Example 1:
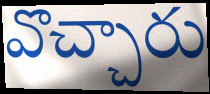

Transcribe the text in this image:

వొచ్చారు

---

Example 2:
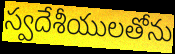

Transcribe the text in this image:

స్వదేశీయులతోను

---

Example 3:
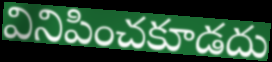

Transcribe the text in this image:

వినిపించకూడదు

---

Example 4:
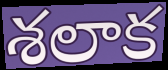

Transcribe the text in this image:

శలాక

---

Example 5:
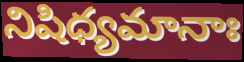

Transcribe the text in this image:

నిషిధ్యమానాః